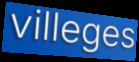
villeges